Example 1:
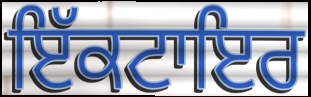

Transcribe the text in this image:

ਇੱਕਟਾਇਰ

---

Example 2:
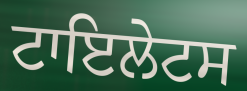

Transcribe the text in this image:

ਟਾਇਲੇਟਸ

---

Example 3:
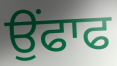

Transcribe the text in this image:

ਉੰਫਾਫ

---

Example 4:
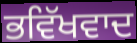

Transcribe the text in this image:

ਭਵਿੱਖਵਾਦ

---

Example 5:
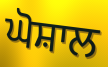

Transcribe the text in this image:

ਘੋਸ਼ਾਲ